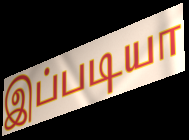
இப்படியா